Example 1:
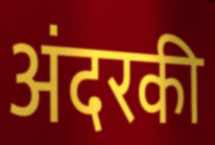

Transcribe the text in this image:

अंदरकी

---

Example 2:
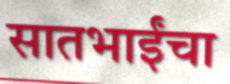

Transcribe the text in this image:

सातभाईंचा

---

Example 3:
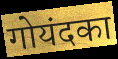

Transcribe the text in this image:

गोयंदका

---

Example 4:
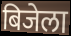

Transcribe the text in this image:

बिजेला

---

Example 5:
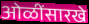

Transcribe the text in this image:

ओळींसारखे